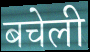
बचेली